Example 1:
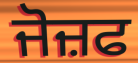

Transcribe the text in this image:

ਜੋਜ਼ਫ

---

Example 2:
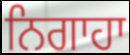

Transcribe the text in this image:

ਨਿਗਾਹਾ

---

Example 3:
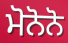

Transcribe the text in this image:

ਮੋਨੋਨੋ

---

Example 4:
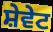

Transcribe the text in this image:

ਸ਼ੇਵੇਟ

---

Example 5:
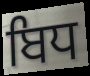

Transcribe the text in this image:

ਬਿਧ